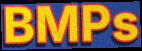
BMPs